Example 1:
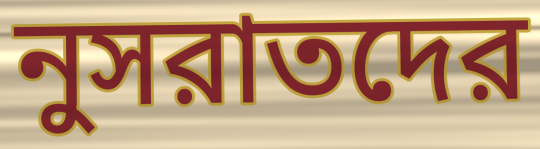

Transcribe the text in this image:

নুসরাতদের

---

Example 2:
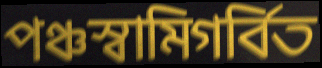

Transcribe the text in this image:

পঞ্চস্বামিগর্বিত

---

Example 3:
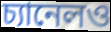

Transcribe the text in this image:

চ্যানেলও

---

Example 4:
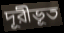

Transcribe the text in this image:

দূরীভূত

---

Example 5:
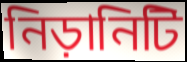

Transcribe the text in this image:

নিড়ানিটি